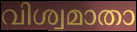
വിശ്വമാതാ